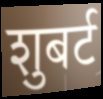
शुबर्ट